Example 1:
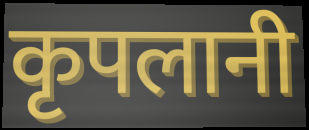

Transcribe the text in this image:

कृपलानी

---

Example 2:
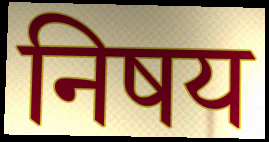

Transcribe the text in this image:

निषय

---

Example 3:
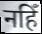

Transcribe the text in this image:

नहिँ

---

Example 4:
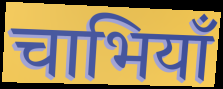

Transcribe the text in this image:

चाभियाँ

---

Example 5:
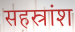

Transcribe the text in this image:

सहस्रांश